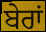
ਬੇਰਾਂ